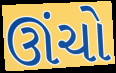
ઊંચો